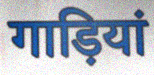
गाड़ियां